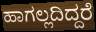
ಹಾಗಲ್ಲದಿದ್ದರೆ